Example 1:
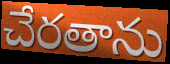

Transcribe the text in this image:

చేరతాను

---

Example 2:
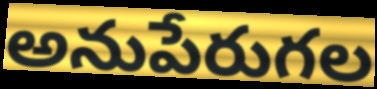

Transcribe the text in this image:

అనుపేరుగల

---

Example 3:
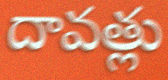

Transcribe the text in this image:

దావత్లు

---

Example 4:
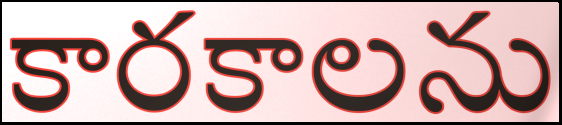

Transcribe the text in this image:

కారకాలను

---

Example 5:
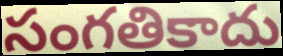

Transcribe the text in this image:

సంగతికాదు